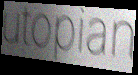
utopian